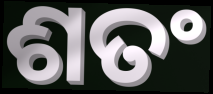
ଶତଂ